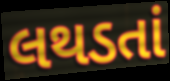
લથડતાં